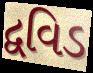
દ્વવિડ